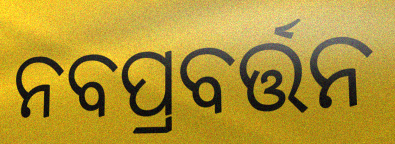
ନବପ୍ରବର୍ତ୍ତନ